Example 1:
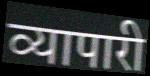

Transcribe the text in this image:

व्यापारी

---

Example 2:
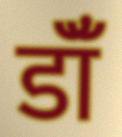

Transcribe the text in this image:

डॉँ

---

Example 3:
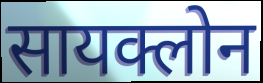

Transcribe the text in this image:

सायक्लोन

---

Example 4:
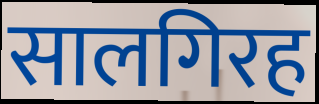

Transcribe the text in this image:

सालगिरह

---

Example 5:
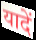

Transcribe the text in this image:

यादें